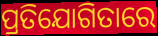
ପ୍ରତିଯୋଗିତାରେ